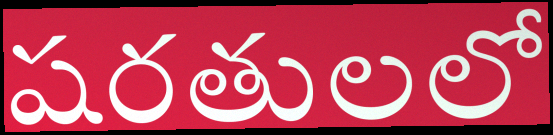
షరతులలో